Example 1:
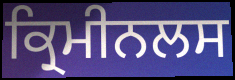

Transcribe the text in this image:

ਕ੍ਰਿਮੀਨਲਸ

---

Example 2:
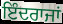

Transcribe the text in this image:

ਇੰਦਰਾਜਾਂ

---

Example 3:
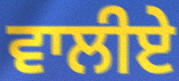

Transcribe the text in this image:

ਵਾਲੀਏ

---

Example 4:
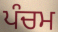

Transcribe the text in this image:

ਪੰਚਮ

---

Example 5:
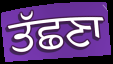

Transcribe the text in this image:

ਤੱਛਣਾ